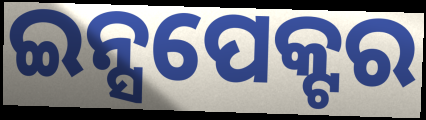
ଇନ୍ସପେକ୍ଟର